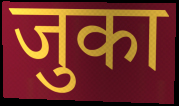
जुका